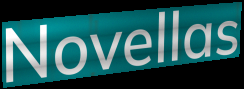
Novellas